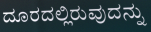
ದೂರದಲ್ಲಿರುವುದನ್ನು